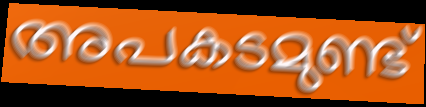
അപകടമുണ്ട്